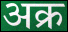
अक्र